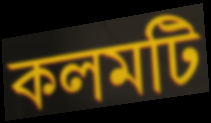
কলমটি